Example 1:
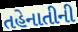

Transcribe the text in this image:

તહેનાતીની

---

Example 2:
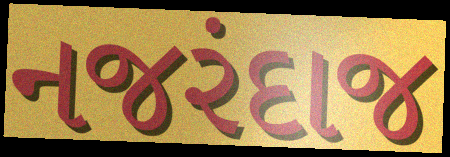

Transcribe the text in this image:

નજરંદાજ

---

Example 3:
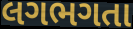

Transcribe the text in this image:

લગભગતા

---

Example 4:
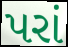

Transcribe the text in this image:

પરાં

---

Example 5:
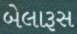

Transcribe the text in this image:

બેલારૂસ